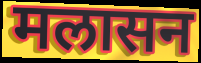
मलासन